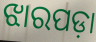
ଝାରପଡ଼ା